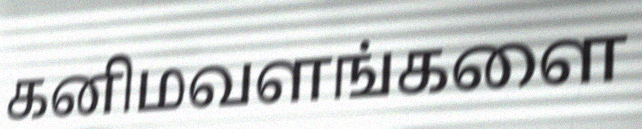
கனிமவளங்களை